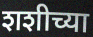
शशीच्या